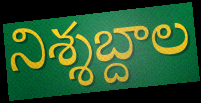
నిశ్శబ్దాల